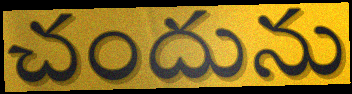
చందును